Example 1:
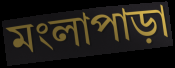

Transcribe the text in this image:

মংলাপাড়া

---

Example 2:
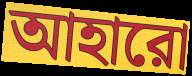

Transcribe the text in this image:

আহারো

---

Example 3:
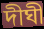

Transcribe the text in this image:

দীঘী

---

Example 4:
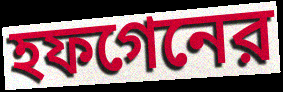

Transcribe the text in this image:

হফগেনের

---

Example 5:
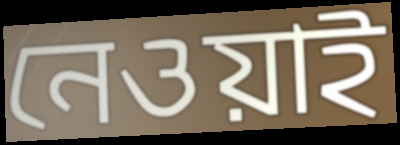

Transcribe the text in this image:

নেওয়াই